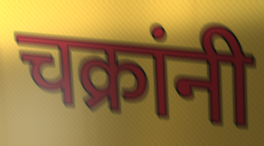
चक्रांनी